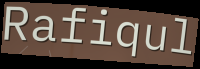
Rafiqul